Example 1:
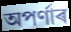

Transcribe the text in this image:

অপৰ্ণাৰ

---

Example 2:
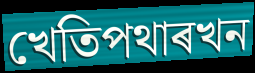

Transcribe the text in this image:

খেতিপথাৰখন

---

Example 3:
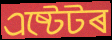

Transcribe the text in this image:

এষ্টেটৰ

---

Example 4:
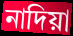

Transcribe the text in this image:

নাদিয়া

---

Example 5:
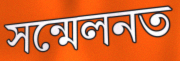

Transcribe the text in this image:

সন্মেলনত